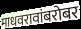
माधवरावांबरोबर